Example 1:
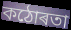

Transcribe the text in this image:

কঠোৰতা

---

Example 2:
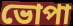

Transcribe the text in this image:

ভোপা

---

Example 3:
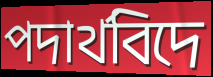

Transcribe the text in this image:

পদাৰ্থবিদে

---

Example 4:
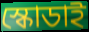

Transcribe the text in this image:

স্কোডাই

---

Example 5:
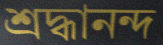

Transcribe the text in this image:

শ্ৰদ্ধানন্দ